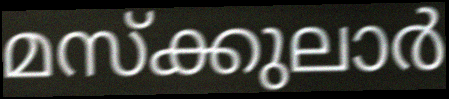
മസ്ക്കുലാർ